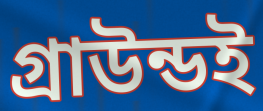
গ্রাউন্ডই